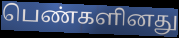
பெண்களினது